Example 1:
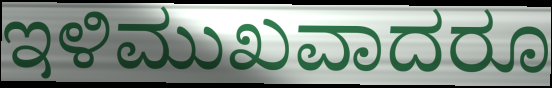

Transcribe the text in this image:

ಇಳಿಮುಖವಾದರೂ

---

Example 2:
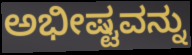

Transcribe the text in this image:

ಅಭೀಷ್ಟವನ್ನು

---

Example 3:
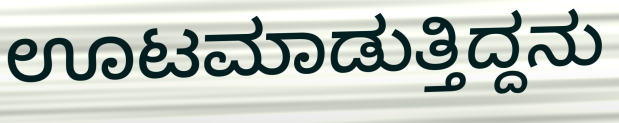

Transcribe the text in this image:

ಊಟಮಾಡುತ್ತಿದ್ದನು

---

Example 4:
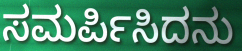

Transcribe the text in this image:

ಸಮರ್ಪಿಸಿದನು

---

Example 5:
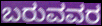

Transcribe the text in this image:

ಬರುವವರ